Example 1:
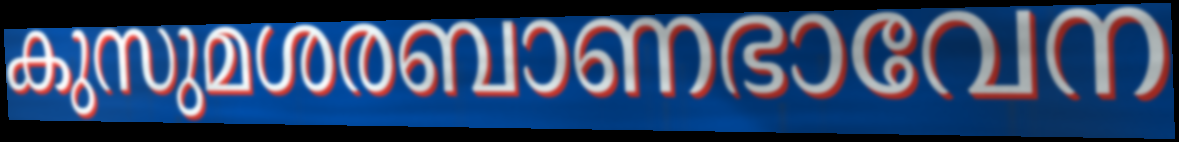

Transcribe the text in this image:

കുസുമശരബാണഭാവേന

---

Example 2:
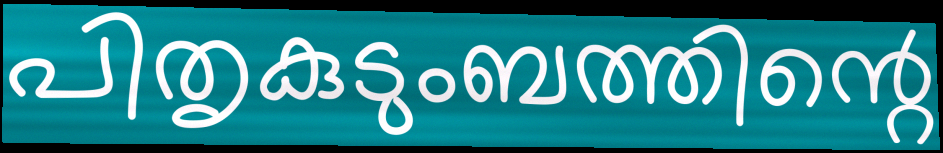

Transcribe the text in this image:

പിതൃകുടുംബത്തിന്റെ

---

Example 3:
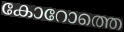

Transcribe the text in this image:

കോറോത്തെ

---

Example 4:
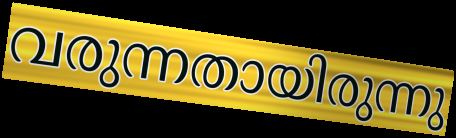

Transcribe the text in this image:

വരുന്നതായിരുന്നു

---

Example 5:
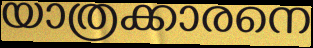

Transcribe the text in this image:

യാത്രക്കാരനെ